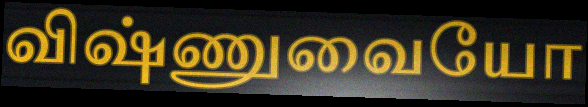
விஷ்ணுவையோ